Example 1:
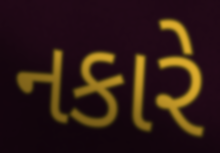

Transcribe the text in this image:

નકારે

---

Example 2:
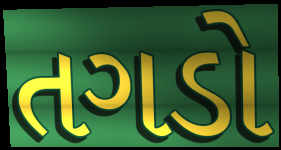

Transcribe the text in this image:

તગડો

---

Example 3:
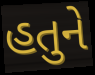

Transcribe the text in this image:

હતુને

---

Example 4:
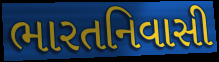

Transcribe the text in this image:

ભારતનિવાસી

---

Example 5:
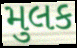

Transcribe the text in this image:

મુલક